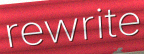
rewrite